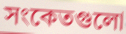
সংকেতগুলো